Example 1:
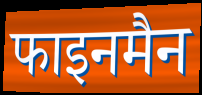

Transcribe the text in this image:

फाइनमैन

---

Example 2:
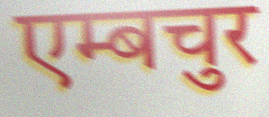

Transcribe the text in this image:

एम्बचुर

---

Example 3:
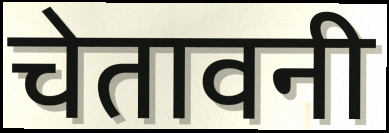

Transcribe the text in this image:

चेतावनी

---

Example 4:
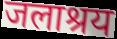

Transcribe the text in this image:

जलाश्रय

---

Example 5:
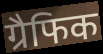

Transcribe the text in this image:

ग्रैफिक